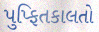
પુપ્ફિતકાલતો